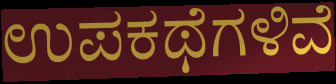
ಉಪಕಥೆಗಳಿವೆ